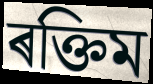
ৰক্তিম